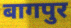
बागपुर